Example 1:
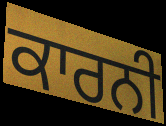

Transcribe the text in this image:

ਕਾਰਨੀ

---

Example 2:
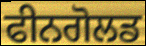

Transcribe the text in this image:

ਫੀਨਗੋਲਡ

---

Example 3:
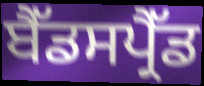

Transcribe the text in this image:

ਬੈੱਡਸਪ੍ਰੈੱਡ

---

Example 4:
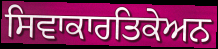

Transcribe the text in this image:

ਸਿਵਾਕਾਰਤਿਕੇਅਨ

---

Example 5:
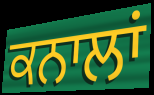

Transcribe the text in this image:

ਕਨਾਲਾਂ